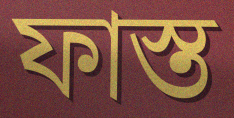
ফাস্ত